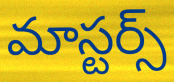
మాస్టర్స్